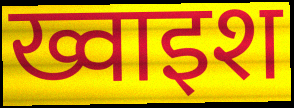
ख्वाइश